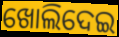
ଖୋଲିଦେଇ